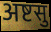
अष्टसु